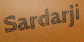
Sardarji